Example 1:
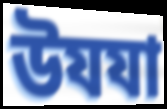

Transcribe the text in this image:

উযযা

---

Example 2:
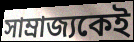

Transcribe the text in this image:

সাম্রাজ্যকেই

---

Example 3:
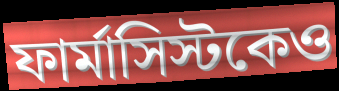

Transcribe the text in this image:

ফার্মাসিস্টকেও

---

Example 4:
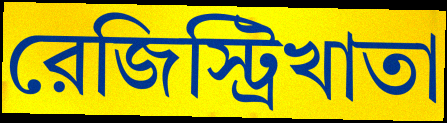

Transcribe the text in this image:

রেজিস্ট্রিখাতা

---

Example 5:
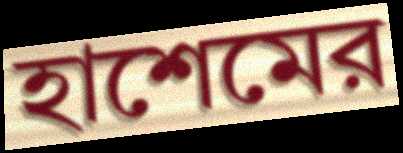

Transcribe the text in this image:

হাশেমের